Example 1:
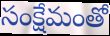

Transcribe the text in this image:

సంక్షేమంతో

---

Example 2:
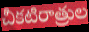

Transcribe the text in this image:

చీకటిరాత్రుల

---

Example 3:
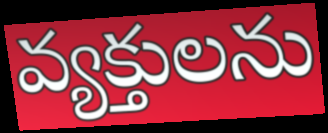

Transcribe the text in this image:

వ్యక్తులను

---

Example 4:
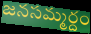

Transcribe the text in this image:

జనసమ్మర్దం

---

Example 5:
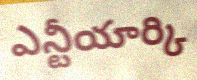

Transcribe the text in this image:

ఎన్టీయార్కి